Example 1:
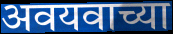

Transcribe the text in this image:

अवयवाच्या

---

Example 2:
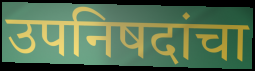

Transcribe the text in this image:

उपनिषदांचा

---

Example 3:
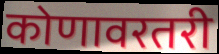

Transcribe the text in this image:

कोणावरतरी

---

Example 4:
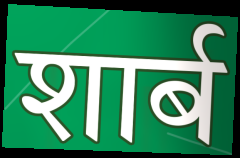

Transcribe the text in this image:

शार्ब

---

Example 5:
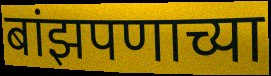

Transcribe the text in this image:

बांझपणाच्या